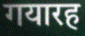
गयारह